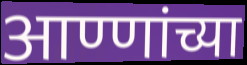
आण्णांच्या